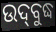
ଉଦ୍‌ବୁଦ୍ଧ